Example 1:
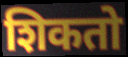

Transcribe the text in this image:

शिकतो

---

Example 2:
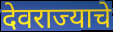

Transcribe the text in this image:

देवराज्याचे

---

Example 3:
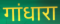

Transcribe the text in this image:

गांधारा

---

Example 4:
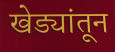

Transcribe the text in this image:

खेड्यांतून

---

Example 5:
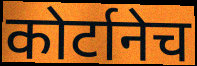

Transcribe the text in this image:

कोर्टानेच